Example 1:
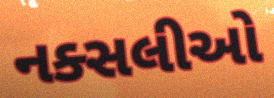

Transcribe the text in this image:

નક્સલીઓ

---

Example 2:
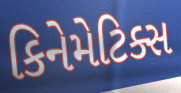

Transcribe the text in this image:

કિનેમેટિક્સ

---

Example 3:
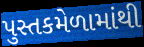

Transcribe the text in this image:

પુસ્તકમેળામાંથી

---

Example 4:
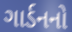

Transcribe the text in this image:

ગાર્ડનનો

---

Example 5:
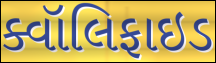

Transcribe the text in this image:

ક્વૉલિફાઇડ